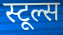
स्टूल्स